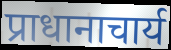
प्राधानाचार्य